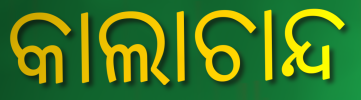
କାଲାଚାନ୍ଦ